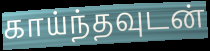
காய்ந்தவுடன்